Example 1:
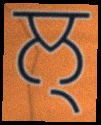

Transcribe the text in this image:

ਲ੍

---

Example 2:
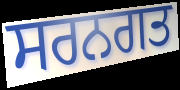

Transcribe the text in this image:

ਸਰਨਗਤ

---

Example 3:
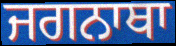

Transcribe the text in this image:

ਜਗਨਾਥਾ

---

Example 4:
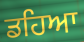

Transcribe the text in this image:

ਡਹਿਆ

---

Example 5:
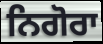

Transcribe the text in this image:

ਨਿਗੋਰਾ